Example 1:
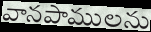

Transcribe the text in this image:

వానపాములను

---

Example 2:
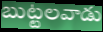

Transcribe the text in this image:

బుట్టలవాడు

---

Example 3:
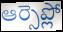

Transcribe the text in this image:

ఆర్సెప్లో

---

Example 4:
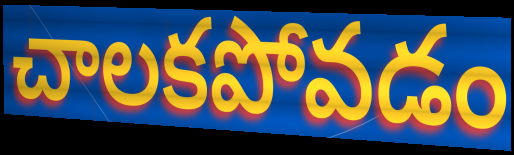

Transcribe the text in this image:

చాలకపోవడం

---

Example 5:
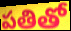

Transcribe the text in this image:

పతితో